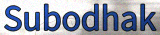
Subodhak